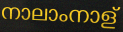
നാലാംനാള്